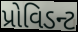
પ્રોવિડન્ટ